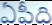
ఏపీది